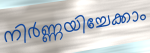
നിർണ്ണയിച്ചേക്കാം